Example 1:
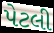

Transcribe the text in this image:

પેટલી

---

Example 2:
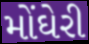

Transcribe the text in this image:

મોંઘેરી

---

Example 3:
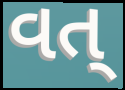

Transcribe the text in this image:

વત્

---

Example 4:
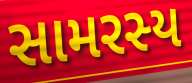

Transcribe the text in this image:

સામરસ્ય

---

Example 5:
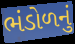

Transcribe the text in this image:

ભંડોળનું